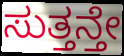
ಸುತ್ತನ್ತೇ